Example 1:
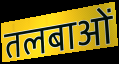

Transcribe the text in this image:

तलबाओं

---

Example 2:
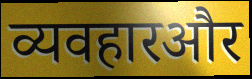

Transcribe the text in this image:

व्यवहारऔर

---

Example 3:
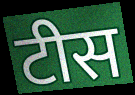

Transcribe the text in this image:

टीस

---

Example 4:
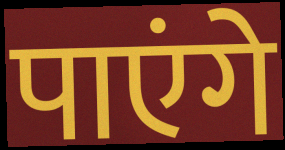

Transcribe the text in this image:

पाएंगे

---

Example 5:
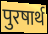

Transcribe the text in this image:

पुरषार्थ